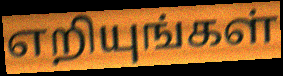
எறியுங்கள்